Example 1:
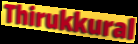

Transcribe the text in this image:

Thirukkural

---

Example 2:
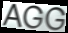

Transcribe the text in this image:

AGG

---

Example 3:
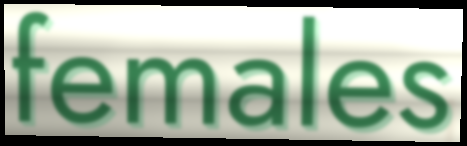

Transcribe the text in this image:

females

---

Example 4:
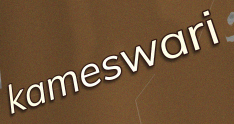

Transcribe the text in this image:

kameswari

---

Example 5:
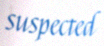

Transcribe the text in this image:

suspected